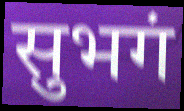
सुभगं